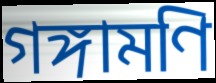
গঙ্গামণি